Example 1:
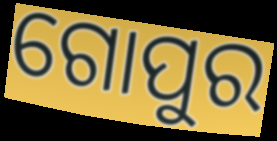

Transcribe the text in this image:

ଗୋପୁର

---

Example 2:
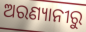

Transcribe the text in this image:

ଅରଣ୍ୟାନୀରୁ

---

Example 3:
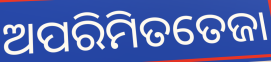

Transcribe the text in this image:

ଅପରିମିତତେଜା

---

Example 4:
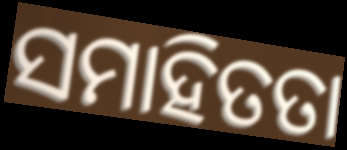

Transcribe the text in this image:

ସମାହିତତା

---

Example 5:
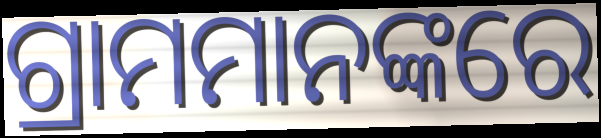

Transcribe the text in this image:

ଗ୍ରାମମାନଙ୍କରେ